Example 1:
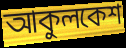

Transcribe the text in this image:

আকুলকেশ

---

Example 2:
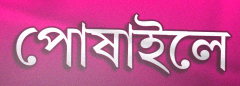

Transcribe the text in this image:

পোষাইলে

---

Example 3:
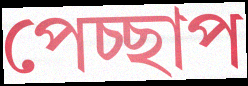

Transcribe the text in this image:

পেচ্ছাপ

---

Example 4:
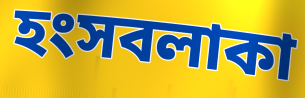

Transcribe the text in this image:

হংসবলাকা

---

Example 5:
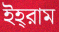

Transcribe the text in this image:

ইহ্‌রাম